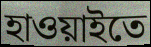
হাওয়াইতে